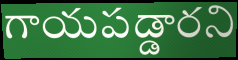
గాయపడ్డారని